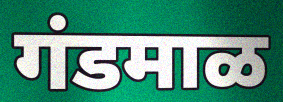
गंडमाळ